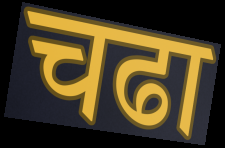
चढा